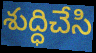
శుద్ధిచేసి